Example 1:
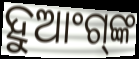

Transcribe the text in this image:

ହୁଆଂଗ୍‍ଙ୍କ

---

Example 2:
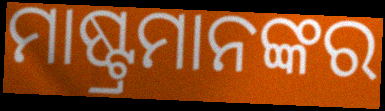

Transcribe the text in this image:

ମାଷ୍ଟ୍ରମାନଙ୍କର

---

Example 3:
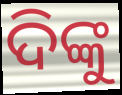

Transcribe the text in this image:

ଦିଙ୍କୁ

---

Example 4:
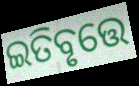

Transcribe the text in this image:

ଇତିବୃତ୍ତେ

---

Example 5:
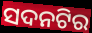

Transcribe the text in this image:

ସଦନଟିର